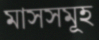
মাসসমূহ